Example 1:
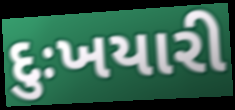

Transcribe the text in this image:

દુઃખયારી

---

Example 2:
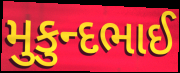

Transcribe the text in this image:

મુકુન્દભાઈ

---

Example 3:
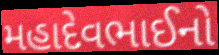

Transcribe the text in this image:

મહાદેવભાઈનો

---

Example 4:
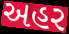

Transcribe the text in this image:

અહર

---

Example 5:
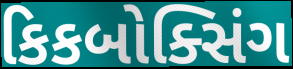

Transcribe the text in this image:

કિકબોક્સિંગ